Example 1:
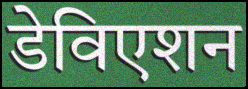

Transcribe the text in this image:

डेविएशन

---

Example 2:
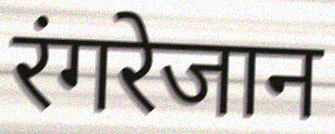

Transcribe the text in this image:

रंगरेजान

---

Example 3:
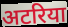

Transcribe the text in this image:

अटरिया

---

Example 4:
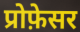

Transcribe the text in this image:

प्रोफ़ेसर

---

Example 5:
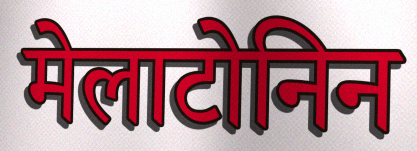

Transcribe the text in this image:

मेलाटोनिन